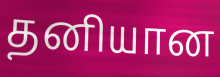
தனியான